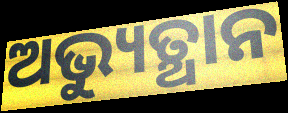
ଅଭ୍ୟୁତ୍ଥାନ